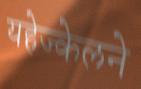
यहेज्केलने